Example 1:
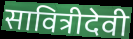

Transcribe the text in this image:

सावित्रीदेवी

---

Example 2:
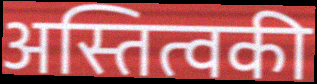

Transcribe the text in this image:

अस्तित्वकी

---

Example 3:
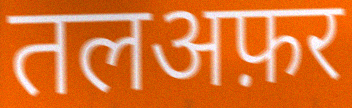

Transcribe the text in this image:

तलअफ़र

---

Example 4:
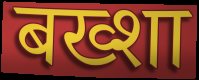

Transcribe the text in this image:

बख्शा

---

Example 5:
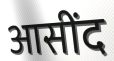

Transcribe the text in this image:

आसींद